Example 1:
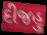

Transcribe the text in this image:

દીજહુ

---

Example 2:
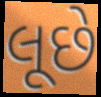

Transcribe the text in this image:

લૂછે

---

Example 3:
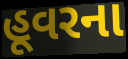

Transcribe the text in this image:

હૂવરના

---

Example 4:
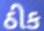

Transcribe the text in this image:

ઠીક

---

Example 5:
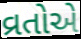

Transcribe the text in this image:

વ્રતોએ